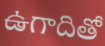
ఉగాదితో